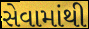
સેવામાંથી